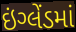
ઇંગ્લેંડમાં